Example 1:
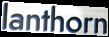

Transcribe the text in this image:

lanthorn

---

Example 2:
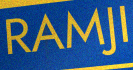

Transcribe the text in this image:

RAMJI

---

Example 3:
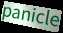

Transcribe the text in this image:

panicle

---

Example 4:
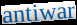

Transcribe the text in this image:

antiwar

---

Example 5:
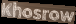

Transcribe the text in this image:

Khosrow